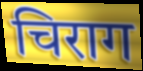
चिराग